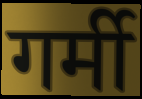
गर्मी